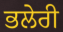
ਭਲੇਰੀ